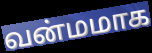
வன்மமாக